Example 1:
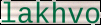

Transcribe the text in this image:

lakhvo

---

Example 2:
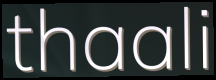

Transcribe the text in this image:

thaali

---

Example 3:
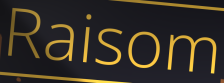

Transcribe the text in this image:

Raisom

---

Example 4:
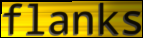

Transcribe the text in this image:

flanks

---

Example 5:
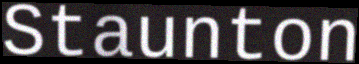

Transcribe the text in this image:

Staunton